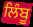
ਲਿੰਬੂ